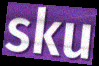
sku